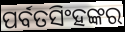
ପର୍ବତସିଂହଙ୍କର